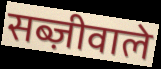
सब्ज़ीवाले